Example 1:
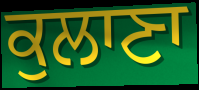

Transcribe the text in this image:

ਕੁਲਾਣਾ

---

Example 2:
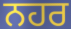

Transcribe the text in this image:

ਨਹਰ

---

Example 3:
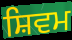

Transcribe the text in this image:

ਸ਼ਿਵਮ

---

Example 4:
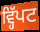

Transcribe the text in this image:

ਵ੍ਹਿੱਪਟ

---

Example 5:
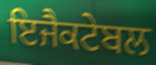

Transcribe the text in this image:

ਇਜੈਕਟੇਬਲ